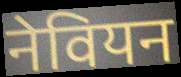
नेवियन